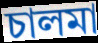
চালমা